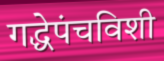
गद्धेपंचविशी